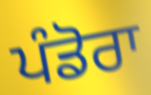
ਪੰਡੋਰਾ